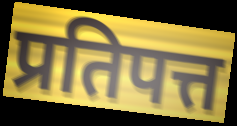
प्रतिपत्त